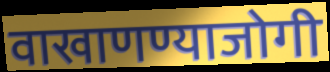
वाखाणण्याजोगी